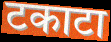
टकाटा